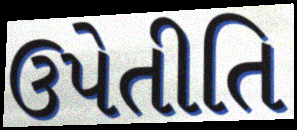
ઉપેતીતિ